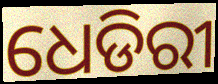
ଧେଡିରୀ